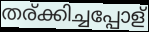
തര്ക്കിച്ചപ്പോള്